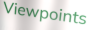
Viewpoints